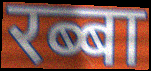
रब्बा